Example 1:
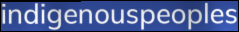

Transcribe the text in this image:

indigenouspeoples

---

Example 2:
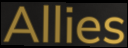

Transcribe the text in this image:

Allies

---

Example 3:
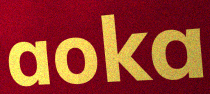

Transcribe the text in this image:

aoka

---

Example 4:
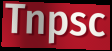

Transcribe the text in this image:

Tnpsc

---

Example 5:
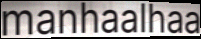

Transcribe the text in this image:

manhaalhaa